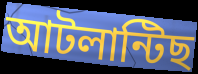
আটলান্টিছ